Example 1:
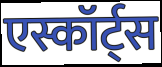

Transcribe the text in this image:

एस्कॉर्ट्स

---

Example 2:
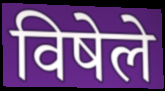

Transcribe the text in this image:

विषेले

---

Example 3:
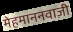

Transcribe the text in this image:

मेहमाननवाज़ी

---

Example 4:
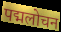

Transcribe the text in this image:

पद्मलोचन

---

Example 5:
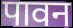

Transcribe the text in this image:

पावन